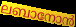
ലബാനോൻ